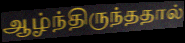
ஆழ்ந்திருந்ததால்